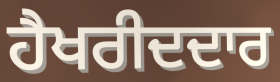
ਹੈਖਰੀਦਦਾਰ